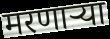
मरणार्‍या